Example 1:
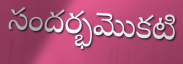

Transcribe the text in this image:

సందర్భమొకటి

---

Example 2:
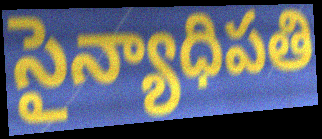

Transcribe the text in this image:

సైన్యాధిపతి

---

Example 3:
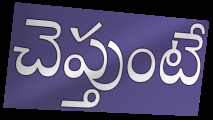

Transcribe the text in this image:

చెప్తుంటే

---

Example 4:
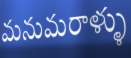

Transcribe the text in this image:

మనుమరాళ్ళు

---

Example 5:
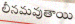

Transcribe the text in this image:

లీనమవుతాయి